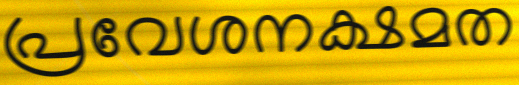
പ്രവേശനക്ഷമത